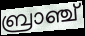
ബ്രാഞ്ച്